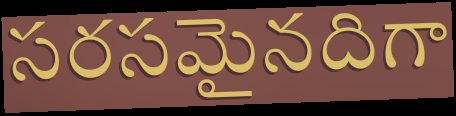
సరసమైనదిగా